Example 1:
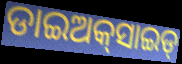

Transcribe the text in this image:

ଡାଇଅକ୍‌ସାଇଡ୍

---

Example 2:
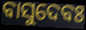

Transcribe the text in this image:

ବାସୁଦେବଃ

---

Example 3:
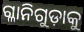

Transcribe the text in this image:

ଗ୍ଳାନିଗୁଡ଼ାକୁ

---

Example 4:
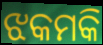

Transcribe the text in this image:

ଝକମକି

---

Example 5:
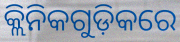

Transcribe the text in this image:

କ୍ଲିନିକଗୁଡ଼ିକରେ